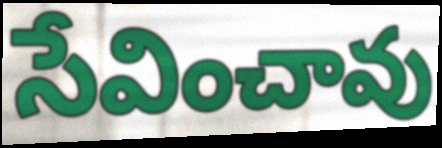
సేవించావు